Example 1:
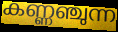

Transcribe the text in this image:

കണ്ണഞ്ചുന്ന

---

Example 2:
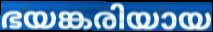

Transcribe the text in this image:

ഭയങ്കരിയായ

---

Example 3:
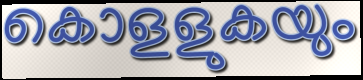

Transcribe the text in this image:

കൊളളുകയും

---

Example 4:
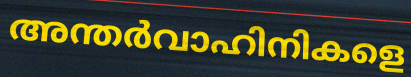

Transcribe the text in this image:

അന്തർവാഹിനികളെ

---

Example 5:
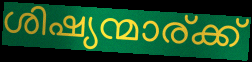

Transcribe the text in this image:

ശിഷ്യന്മാര്ക്ക്